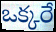
ఒక్కరే